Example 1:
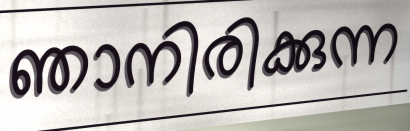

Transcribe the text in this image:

ഞാനിരിക്കുന്ന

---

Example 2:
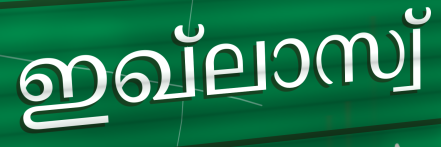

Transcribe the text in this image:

ഇഖ്ലാസ്വ്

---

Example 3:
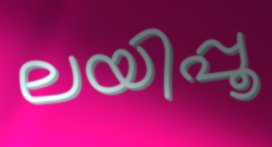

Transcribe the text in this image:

ലയിപ്പൂ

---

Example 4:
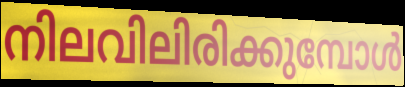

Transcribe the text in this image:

നിലവിലിരിക്കുമ്പോൾ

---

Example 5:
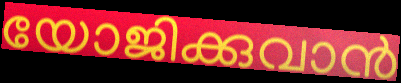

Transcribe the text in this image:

യോജിക്കുവാൻ